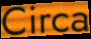
Circa